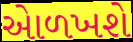
એાળખશે